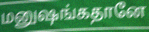
மனுஷங்கதானே